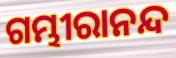
ଗମ୍ଭୀରାନନ୍ଦ